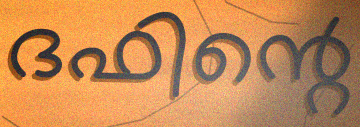
ദഫിന്റെ